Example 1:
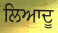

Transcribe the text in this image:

ਲਿਆਦੂ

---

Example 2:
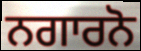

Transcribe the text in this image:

ਨਗਾਰਨੋ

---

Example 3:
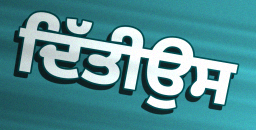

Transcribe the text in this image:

ਦਿੱਤੀਉਸ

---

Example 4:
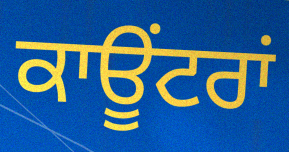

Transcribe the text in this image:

ਕਾਊਂਟਰਾਂ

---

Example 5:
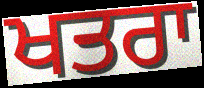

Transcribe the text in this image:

ਖਤਰਾ